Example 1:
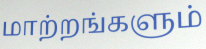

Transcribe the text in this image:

மாற்றங்களும்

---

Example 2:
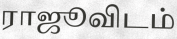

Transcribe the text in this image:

ராஜூவிடம்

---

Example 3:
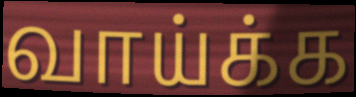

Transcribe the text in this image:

வாய்க்க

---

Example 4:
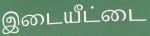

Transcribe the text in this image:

இடையீட்டை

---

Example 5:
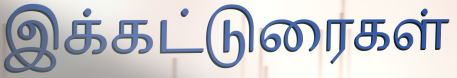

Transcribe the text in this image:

இக்கட்டுரைகள்